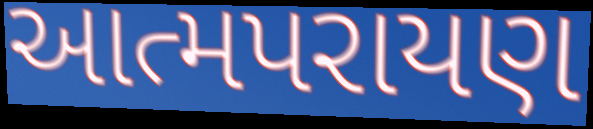
આત્મપરાયણ